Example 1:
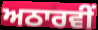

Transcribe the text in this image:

ਅਠਾਰਵੀਂ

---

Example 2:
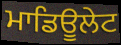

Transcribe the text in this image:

ਮਾਡਿਊਲੇਟ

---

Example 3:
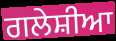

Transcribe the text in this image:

ਗਲੇਸ਼ੀਆ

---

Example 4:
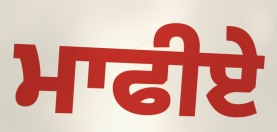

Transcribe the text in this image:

ਮਾਫੀਏ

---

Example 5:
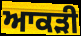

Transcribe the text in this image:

ਆਕੜੀ